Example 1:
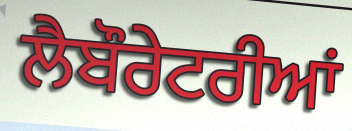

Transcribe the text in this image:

ਲੈਬੌਰੇਟਰੀਆਂ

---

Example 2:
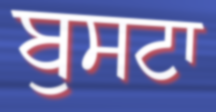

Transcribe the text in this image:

ਬੁਸਟਾ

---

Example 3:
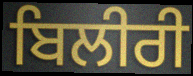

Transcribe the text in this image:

ਬਿਲੀਰੀ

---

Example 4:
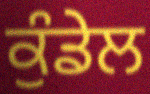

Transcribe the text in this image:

ਕੁੰਡੇਲ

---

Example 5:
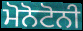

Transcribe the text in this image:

ਮੋਨੋਟੋਨੀ